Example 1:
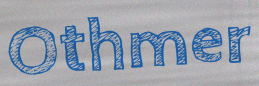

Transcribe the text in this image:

Othmer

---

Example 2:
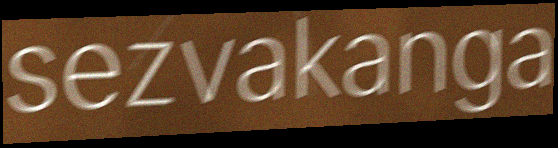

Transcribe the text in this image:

sezvakanga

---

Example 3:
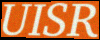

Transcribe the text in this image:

UISR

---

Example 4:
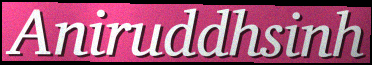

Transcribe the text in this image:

Aniruddhsinh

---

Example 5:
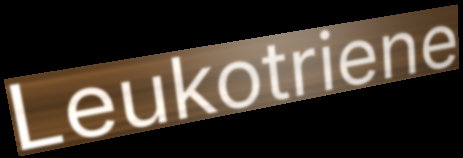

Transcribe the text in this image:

Leukotriene